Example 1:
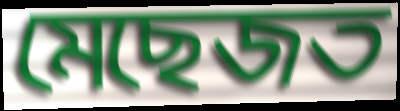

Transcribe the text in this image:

মেছেজত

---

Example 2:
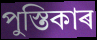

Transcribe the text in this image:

পুস্তিকাৰ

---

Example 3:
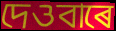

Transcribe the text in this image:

দেওবাৰে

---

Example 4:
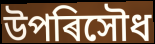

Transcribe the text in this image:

উপৰিসৌধ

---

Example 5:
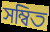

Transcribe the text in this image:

সম্বিত